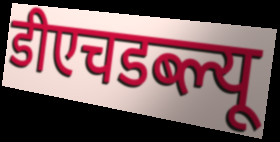
डीएचडब्ल्यू